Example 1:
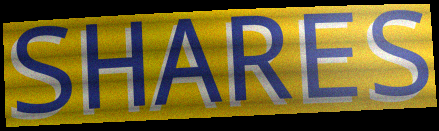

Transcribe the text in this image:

SHARES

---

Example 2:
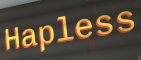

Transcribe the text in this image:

Hapless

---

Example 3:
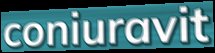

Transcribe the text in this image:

coniuravit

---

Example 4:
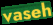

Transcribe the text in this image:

vaseh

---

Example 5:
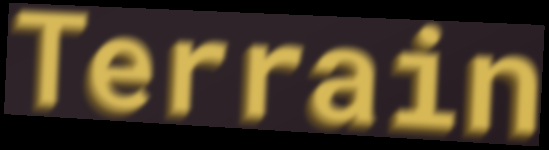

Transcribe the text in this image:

Terrain